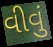
વીવું